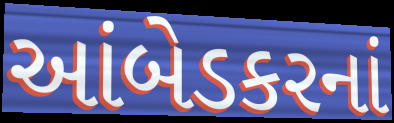
આંબેડકરનાં